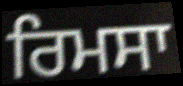
ਰਿਮਸਾ